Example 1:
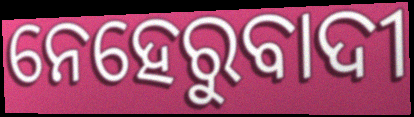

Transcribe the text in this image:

ନେହେରୁବାଦୀ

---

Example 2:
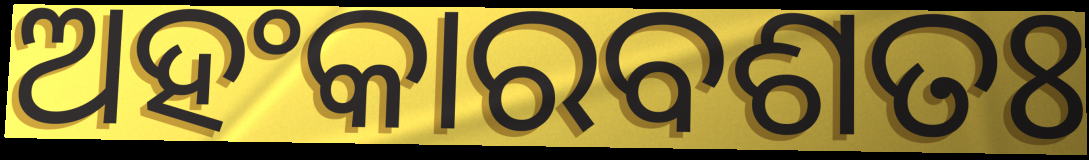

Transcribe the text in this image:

ଅହଂକାରବଶତଃ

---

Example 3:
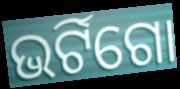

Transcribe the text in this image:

ଭର୍ଟିଗୋ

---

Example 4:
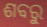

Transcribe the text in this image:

ଶବରୁ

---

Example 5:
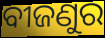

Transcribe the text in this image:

ବୀଜଣୁର